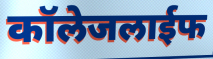
कॉलेजलाईफ